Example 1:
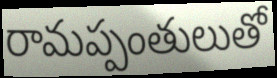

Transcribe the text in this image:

రామప్పంతులుతో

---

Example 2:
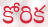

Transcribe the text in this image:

కోరిక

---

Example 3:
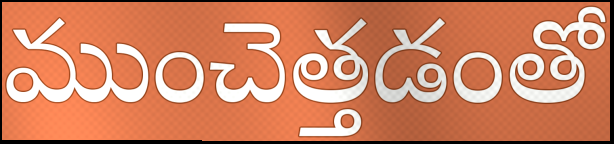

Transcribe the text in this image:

ముంచెత్తడంతో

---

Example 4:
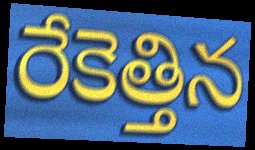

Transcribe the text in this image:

రేకెత్తిన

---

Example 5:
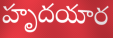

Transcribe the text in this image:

హృదయార